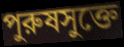
পুরুষসুক্তে